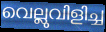
വെല്ലുവിളിച്ച